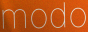
modo